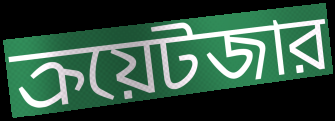
ক্রয়েটজার